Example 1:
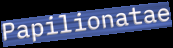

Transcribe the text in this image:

Papilionatae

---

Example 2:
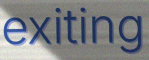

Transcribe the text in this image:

exiting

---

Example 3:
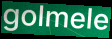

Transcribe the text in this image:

golmele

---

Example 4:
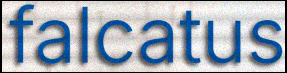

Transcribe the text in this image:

falcatus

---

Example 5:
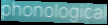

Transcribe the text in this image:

phonological